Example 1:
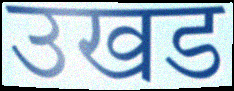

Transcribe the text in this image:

उखड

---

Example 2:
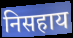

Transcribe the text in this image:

निसहाय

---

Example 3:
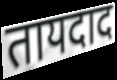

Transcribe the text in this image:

तायदाद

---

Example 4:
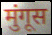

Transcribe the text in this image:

मुंगूस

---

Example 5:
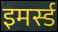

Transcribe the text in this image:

इमर्स्ड